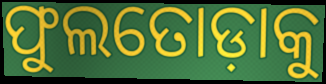
ଫୁଲତୋଡ଼ାକୁ